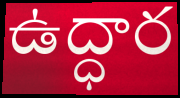
ఉద్ధార